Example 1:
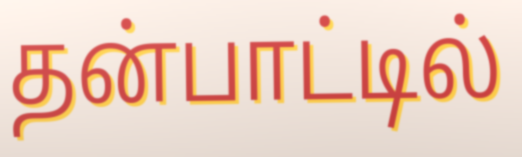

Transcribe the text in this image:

தன்பாட்டில்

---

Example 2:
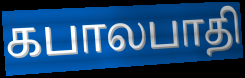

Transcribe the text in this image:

கபாலபாதி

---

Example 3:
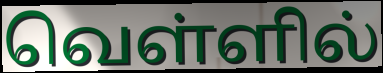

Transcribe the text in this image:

வெள்ளில்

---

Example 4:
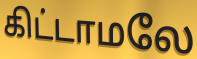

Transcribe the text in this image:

கிட்டாமலே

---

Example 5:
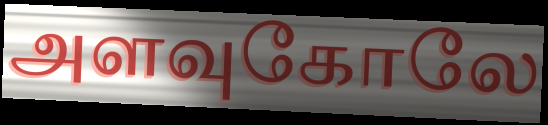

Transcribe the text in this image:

அளவுகோலே